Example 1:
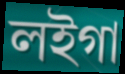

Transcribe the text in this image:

লইগা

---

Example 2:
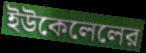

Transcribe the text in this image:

ইউকেলেলের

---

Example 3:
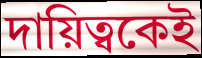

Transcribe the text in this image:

দায়িত্বকেই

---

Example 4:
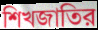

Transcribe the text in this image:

শিখজাতির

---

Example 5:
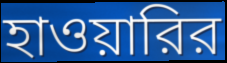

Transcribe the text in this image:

হাওয়ারির